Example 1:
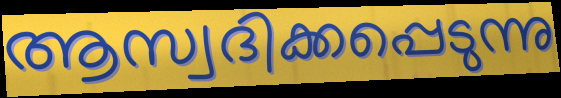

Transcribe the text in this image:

ആസ്വദിക്കപ്പെടുന്നു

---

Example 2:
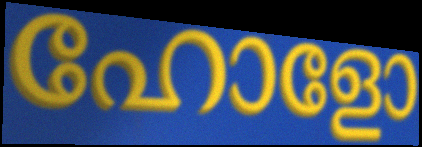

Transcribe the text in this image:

ഹോളോ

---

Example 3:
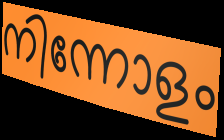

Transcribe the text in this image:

നിന്നോളം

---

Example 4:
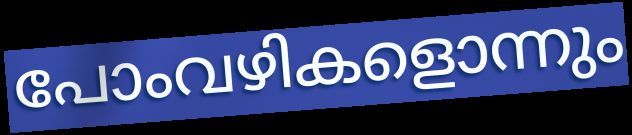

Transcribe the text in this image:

പോംവഴികളൊന്നും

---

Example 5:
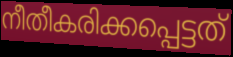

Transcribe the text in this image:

നീതീകരിക്കപ്പെട്ടത്